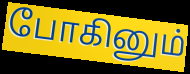
போகினும்